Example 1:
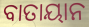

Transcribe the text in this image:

ବାତାୟାନ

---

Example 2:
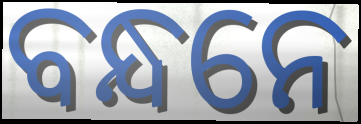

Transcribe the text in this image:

ବନ୍ଧନେ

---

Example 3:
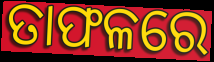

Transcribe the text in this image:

ତାଫଳରେ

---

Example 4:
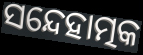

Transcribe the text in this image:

ସନ୍ଦେହାତ୍ମକ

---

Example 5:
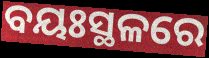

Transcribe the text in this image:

ବୟଃସ୍ଥଳରେ